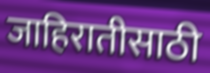
जाहिरातीसाठी